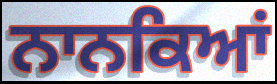
ਨਾਨਕਿਆਂ